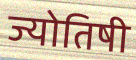
ज्योतिषी